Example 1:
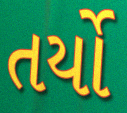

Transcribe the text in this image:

તર્યો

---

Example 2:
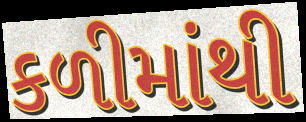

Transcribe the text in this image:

કળીમાંથી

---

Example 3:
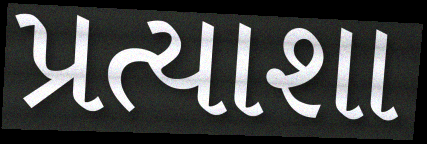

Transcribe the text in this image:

પ્રત્યાશા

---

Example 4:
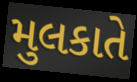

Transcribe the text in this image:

મુલકાતે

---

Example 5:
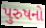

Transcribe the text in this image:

પુરુષનો